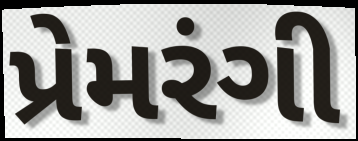
પ્રેમરંગી